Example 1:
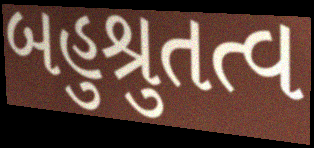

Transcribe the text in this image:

બહુશ્રુતત્વ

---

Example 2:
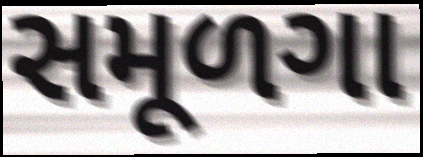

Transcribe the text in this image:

સમૂળગા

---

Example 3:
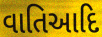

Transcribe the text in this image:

વાતિઆદિ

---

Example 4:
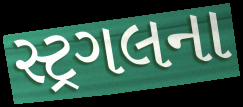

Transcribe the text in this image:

સ્ટ્રગલના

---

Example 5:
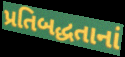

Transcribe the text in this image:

પ્રતિબદ્ધતાનાં